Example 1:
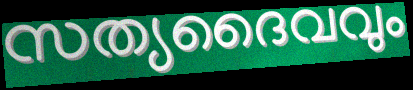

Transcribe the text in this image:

സത്യദൈവവും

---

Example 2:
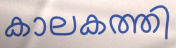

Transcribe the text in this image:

കാലകത്തി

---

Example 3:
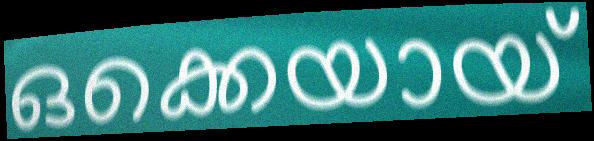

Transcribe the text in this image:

ഒക്കെയായ്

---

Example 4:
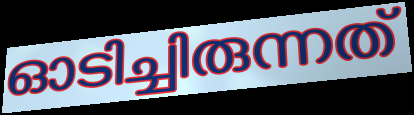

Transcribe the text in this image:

ഓടിച്ചിരുന്നത്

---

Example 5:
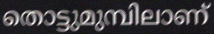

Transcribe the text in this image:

തൊട്ടുമുമ്പിലാണ്